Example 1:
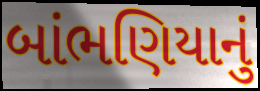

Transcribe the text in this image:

બાંભણિયાનું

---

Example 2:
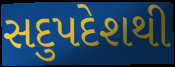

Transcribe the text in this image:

સદુપદેશથી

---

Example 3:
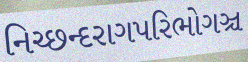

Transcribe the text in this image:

નિચ્છન્દરાગપરિભોગઞ્ચ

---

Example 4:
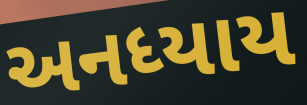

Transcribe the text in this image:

અનધ્યાય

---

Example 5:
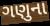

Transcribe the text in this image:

ગણુના